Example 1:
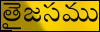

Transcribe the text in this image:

తైజసము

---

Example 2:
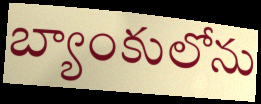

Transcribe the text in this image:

బ్యాంకులోను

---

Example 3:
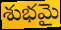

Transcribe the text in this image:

శుభమై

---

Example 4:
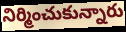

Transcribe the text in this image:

నిర్మించుకున్నారు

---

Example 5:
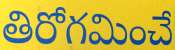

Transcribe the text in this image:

తిరోగమించే